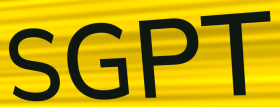
SGPT